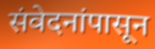
संवेदनांपासून